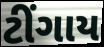
ટીંગાય